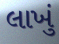
લાખું